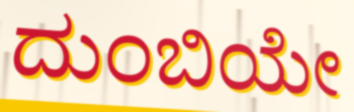
ದುಂಬಿಯೇ